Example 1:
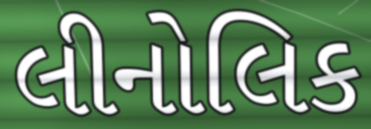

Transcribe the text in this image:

લીનોલિક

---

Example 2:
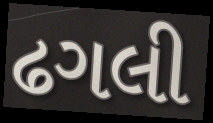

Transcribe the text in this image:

ઢગલી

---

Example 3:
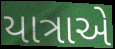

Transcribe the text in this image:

યાત્રાએ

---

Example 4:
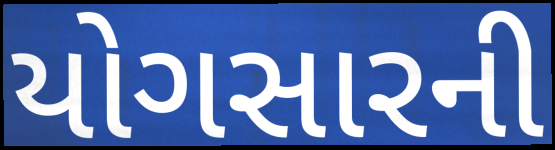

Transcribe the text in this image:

યોગસારની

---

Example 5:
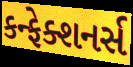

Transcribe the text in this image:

કન્ફેક્શનર્સ